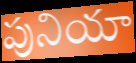
పునియా